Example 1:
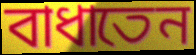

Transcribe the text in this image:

বাধাতেন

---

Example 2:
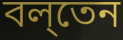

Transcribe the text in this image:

বল্‌তেন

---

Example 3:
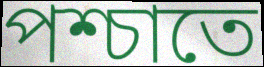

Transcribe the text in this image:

পশ্চাতে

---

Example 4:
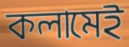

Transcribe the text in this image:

কলামেই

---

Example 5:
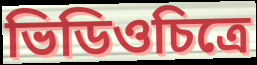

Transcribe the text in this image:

ভিডিওচিত্রে